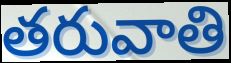
తరువాతి